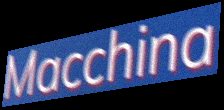
Macchina